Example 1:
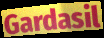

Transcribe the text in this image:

Gardasil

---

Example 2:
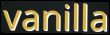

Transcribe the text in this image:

vanilla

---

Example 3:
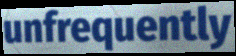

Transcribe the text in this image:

unfrequently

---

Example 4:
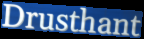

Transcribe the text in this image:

Drusthant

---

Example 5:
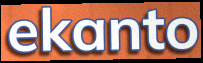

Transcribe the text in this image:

ekanto